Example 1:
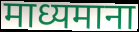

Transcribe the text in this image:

माध्यमाना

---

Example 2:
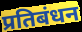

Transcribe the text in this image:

प्रतिबंधन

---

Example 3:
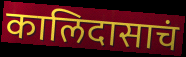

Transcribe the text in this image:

कालिदासाचं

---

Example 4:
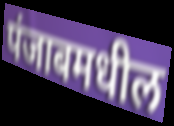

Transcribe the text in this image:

पंजाबमधील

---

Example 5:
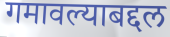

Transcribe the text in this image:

गमावल्याबद्दल